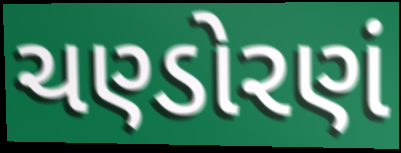
ચણ્ડોરણં